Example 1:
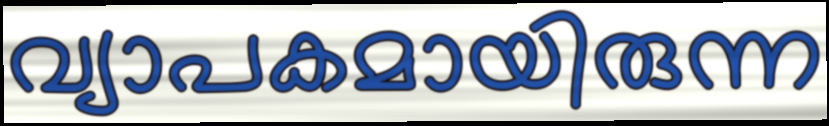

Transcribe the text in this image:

വ്യാപകമായിരുന്ന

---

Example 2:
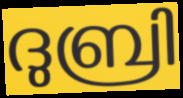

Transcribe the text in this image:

ദുബ്രി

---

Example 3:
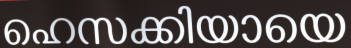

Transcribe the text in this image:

ഹെസക്കിയായെ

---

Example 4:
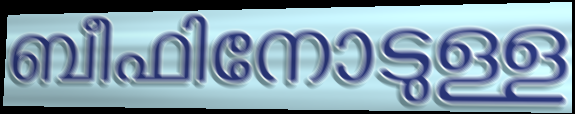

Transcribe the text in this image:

ബീഫിനോടുള്ള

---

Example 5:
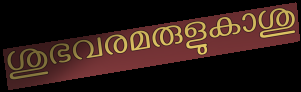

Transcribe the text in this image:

ശുഭവരമരുളുകാശു